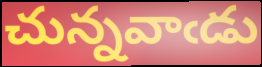
చున్నవాఁడు